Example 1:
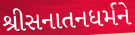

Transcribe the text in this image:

શ્રીસનાતનધર્મને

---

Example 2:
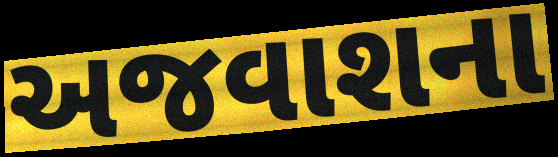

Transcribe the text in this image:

અજવાશના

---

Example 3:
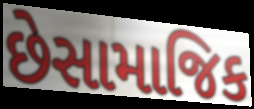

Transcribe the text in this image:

છેસામાજિક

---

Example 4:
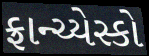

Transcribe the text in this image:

ફ્રાન્ચ્યેસ્કો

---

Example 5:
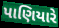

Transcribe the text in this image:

પાણિયારે